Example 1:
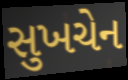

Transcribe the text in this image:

સુખચેન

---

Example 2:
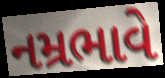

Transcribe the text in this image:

નમ્રભાવે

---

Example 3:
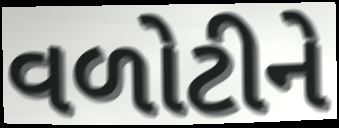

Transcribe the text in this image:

વળોટીને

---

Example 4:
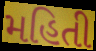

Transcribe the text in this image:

મહિતી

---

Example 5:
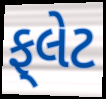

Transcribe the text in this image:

ફ્‌લેટ